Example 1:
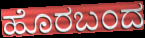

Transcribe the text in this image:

ಹೊರಬಂದ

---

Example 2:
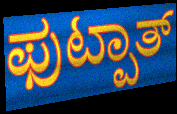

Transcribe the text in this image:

ಫುಟ್ಪಾತ್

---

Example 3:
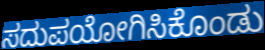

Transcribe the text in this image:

ಸದುಪಯೋಗಿಸಿಕೊಂಡು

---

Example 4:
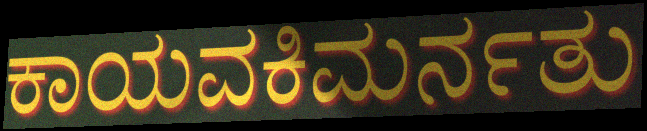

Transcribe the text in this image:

ಕಾಯವಕಿಮರ್ನತು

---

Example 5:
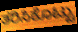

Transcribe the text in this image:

ತರಿಸಿಕೊಟ್ಟು